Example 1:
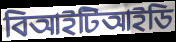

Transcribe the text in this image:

বিআইটিআইডি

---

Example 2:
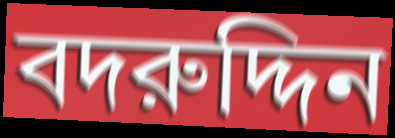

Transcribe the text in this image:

বদরুদ্দিন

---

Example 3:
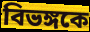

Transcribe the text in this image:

বিভঙ্গকে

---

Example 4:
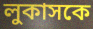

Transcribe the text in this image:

লুকাসকে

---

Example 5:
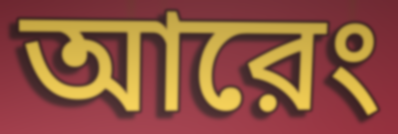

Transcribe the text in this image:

আরেং